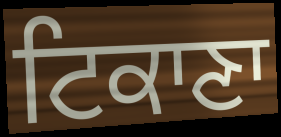
ਟਿਕਾਣਾ